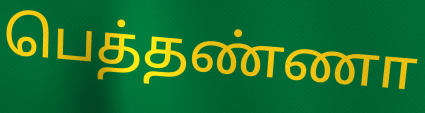
பெத்தண்ணா